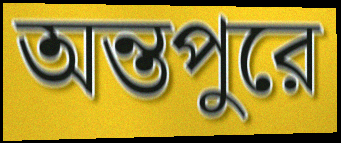
অন্তপুরে